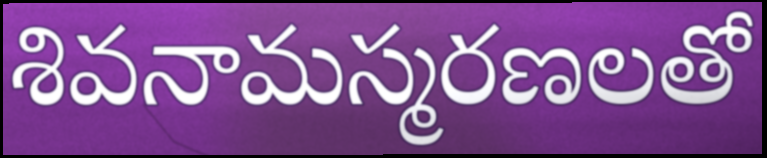
శివనామస్మరణలతో